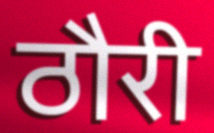
ठौरी